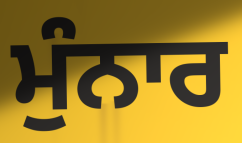
ਮੁੰਨਾਰ